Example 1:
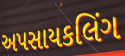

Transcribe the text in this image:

અપસાયકલિંગ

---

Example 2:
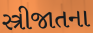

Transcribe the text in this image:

સ્ત્રીજાતના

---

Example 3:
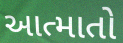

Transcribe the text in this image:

આત્માતો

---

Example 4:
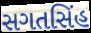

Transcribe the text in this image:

સગતસિંહ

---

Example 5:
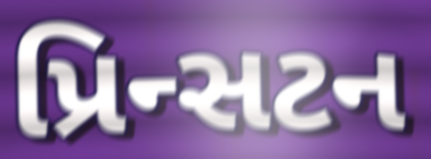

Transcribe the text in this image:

પ્રિન્સટન